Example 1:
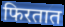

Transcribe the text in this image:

फिरतात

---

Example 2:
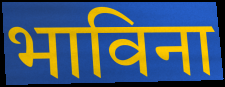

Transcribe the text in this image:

भाविना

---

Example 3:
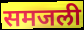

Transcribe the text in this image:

समजली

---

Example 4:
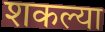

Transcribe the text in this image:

शकल्या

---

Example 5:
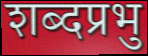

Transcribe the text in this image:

शब्दप्रभु